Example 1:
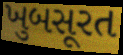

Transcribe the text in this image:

ખુબસૂરત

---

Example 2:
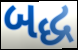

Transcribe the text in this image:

બદ્ધ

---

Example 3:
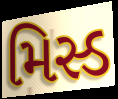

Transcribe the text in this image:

મિસ્ડ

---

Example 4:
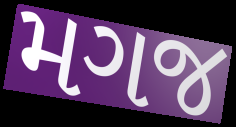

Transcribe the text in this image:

મગજ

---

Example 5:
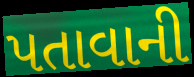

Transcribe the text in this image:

પતાવાની